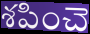
శపించె